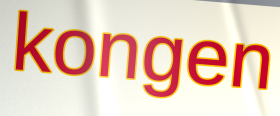
kongen